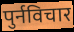
पुर्नविचार